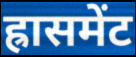
ह्रासमेंट